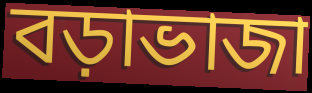
বড়াভাজা